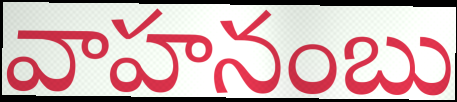
వాహనంబు